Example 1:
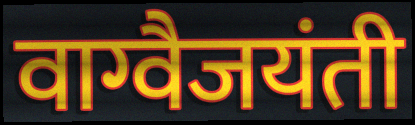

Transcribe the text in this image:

वाग्वैजयंती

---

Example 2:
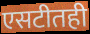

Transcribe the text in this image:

एसटीतही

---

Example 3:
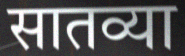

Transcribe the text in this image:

सातव्या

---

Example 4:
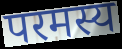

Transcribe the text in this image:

परमस्य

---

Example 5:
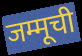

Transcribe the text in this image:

जम्मूची